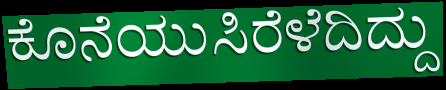
ಕೊನೆಯುಸಿರೆಳೆದಿದ್ದು